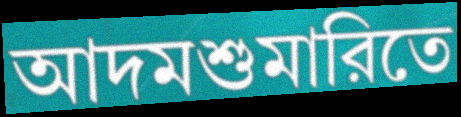
আদমশুমারিতে